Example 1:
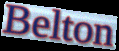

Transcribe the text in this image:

Belton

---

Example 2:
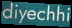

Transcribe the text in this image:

diyechhi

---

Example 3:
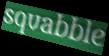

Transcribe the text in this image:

squabble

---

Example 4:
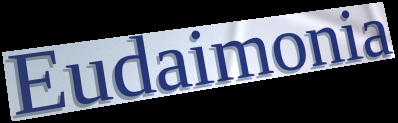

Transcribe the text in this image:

Eudaimonia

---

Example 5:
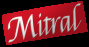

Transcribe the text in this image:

Mitral